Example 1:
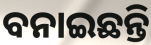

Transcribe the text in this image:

ବନାଇଛନ୍ତି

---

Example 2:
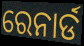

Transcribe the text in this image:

ରେନାର୍ଡ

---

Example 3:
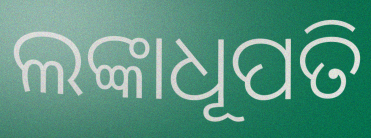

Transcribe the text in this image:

ଲଙ୍କାଧୂପତି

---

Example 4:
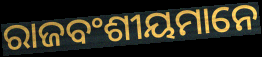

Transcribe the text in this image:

ରାଜବଂଶୀୟମାନେ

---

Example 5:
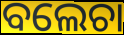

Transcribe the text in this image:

ବଲେଚା